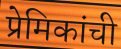
प्रेमिकांची